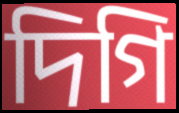
দিগি